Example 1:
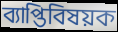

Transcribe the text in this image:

ব্যাপ্তিবিষয়ক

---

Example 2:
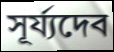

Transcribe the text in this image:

সূর্য্যদেব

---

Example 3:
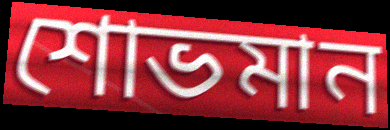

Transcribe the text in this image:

শোভমান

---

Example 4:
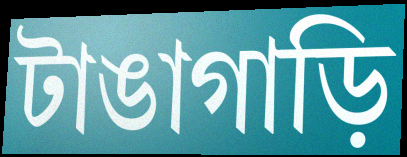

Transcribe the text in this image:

টাঙাগাড়ি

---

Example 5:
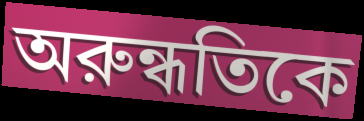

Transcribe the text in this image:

অরুন্ধতিকে